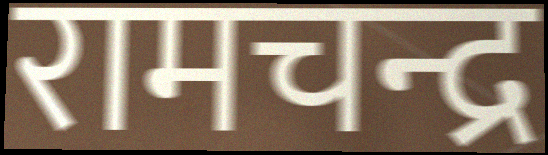
रामचन्‍द्र